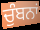
ਚੁੰਬਨਾਂ